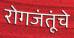
रोगजंतूंचे